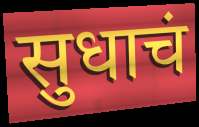
सुधाचं